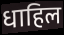
धाहिल